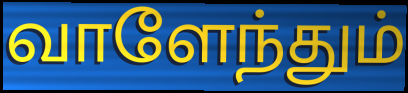
வாளேந்தும்